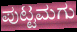
ಪುಟ್ಟಮಗು